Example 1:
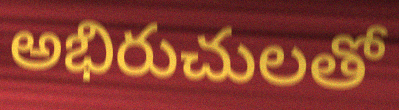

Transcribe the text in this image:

అభిరుచులతో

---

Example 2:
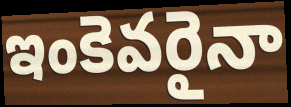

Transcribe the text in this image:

ఇంకెవరైనా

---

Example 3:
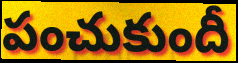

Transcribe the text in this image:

పంచుకుందీ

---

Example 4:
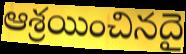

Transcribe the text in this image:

ఆశ్రయించినదై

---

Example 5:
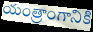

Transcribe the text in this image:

యంత్రాంగానికి